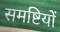
समष्टियों